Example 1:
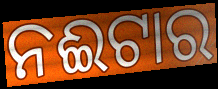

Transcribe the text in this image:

ନଈଟାର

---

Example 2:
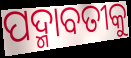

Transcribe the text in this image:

ପଦ୍ମାବତୀକୁ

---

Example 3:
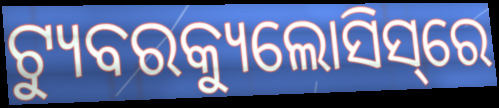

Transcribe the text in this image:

ଟ୍ୟୁବରକ୍ୟୁଲୋସିସ୍‌ରେ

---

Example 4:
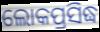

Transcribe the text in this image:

ଲୋକପ୍ରସିଦ୍ଧ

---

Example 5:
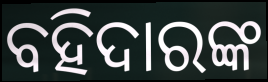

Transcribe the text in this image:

ବହିଦାରଙ୍କ